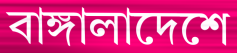
বাঙ্গালাদেশে